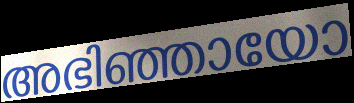
അഭിഞ്ഞായോ